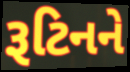
રૂટિનને